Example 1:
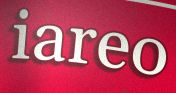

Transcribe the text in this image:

iareo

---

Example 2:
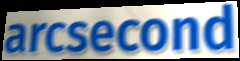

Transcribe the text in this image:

arcsecond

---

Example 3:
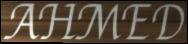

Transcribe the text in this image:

AHMED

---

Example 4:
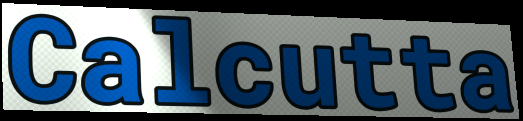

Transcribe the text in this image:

Calcutta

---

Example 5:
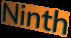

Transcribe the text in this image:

Ninth